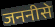
जननीसे